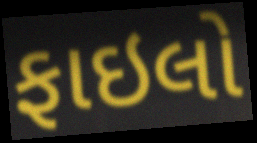
ફાઇલો